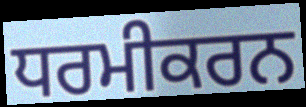
ਧਰਮੀਕਰਨ